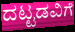
ದಟ್ಟಡವಿಗೆ